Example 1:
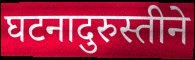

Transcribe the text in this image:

घटनादुरुस्तीने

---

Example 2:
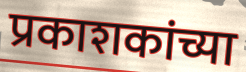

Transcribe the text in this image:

प्रकाशकांच्या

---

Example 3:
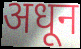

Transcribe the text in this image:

अधून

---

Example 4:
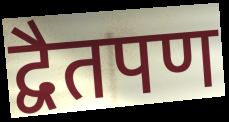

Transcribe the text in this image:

द्वैतपण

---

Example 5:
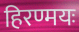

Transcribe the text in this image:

हिरण्मयः